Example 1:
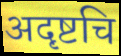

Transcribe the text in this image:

अदृष्टचि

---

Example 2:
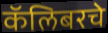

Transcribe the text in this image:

कॅलिबरचे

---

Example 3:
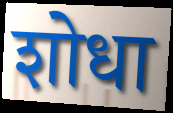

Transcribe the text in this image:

शोधा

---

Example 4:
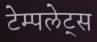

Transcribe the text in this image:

टेम्पलेट्स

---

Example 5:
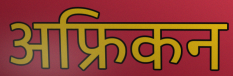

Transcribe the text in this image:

अफ्रिकन